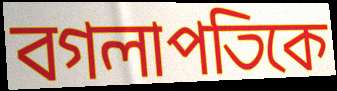
বগলাপতিকে